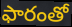
ఫారంతో